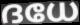
ദധേ